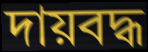
দায়বদ্ধ